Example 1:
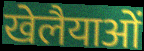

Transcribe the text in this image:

खेलैयाओं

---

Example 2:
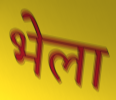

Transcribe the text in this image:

भेला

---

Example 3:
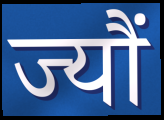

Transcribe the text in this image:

ज्यौं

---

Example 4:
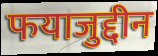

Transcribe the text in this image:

फयाजुद्दीन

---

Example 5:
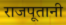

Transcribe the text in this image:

राजपूतानी